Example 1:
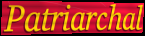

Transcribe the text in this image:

Patriarchal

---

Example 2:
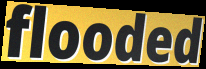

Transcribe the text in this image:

flooded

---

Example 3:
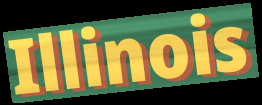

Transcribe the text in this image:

Illinois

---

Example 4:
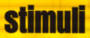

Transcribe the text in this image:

stimuli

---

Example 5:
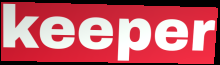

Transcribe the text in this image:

keeper